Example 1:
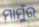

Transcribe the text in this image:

ମାମୁଁର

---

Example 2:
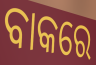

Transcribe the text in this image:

ବାକରେ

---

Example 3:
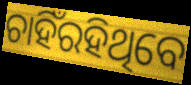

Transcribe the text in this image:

ଚାହିଁରହିଥିବେ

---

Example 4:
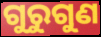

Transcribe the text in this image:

ଗୁରୁଗୁଣ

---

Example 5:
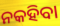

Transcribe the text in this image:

ନକହିବା